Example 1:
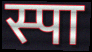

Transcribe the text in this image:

स्पा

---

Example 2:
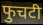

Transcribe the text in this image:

फुचटी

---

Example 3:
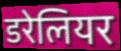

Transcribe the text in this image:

डरेलियर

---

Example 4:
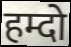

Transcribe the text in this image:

हम्दो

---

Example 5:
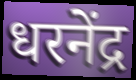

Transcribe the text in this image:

धरनेंद्र